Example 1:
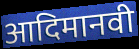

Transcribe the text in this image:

आदिमानवी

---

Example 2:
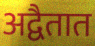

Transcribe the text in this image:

अद्वैतात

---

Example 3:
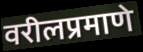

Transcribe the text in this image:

वरीलप्रमाणे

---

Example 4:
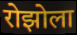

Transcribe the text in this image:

रोझोला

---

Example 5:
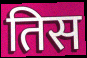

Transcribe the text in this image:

तिस